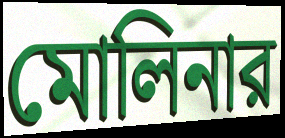
মোলিনার